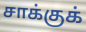
சாக்குக்